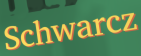
Schwarcz